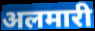
अलमारी